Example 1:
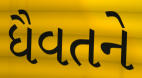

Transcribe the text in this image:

ધૈવતને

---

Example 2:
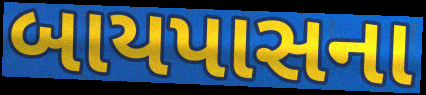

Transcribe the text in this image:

બાયપાસના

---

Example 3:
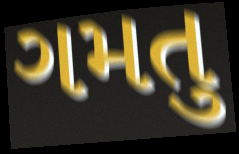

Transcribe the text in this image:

ગમતુ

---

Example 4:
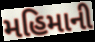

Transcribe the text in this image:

મહિમાની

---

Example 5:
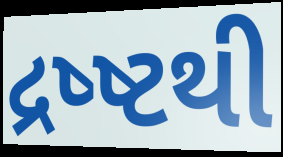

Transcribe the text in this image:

દ્રષ્ષ્ટથી